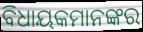
ବିଧାୟକମାନଙ୍କର